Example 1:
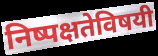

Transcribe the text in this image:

निष्पक्षतेविषयी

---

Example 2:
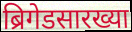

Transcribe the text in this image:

ब्रिगेडसारख्या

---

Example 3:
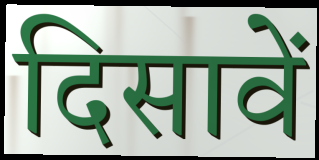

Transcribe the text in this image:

दिसावें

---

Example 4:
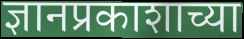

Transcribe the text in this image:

ज्ञानप्रकाशाच्या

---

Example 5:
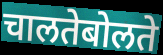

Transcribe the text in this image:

चालतेबोलते